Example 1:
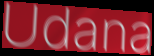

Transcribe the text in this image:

Udana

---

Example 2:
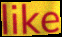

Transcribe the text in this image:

like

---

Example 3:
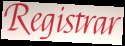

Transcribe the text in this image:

Registrar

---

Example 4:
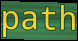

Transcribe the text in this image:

path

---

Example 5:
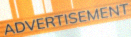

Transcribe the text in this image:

ADVERTISEMENT